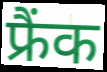
फ्रैंक